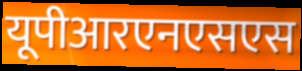
यूपीआरएनएसएस